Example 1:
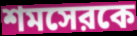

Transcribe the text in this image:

শমসেরকে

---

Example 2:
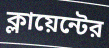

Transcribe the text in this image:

ক্লায়েন্টের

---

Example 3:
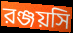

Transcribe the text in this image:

রঞ্জয়সি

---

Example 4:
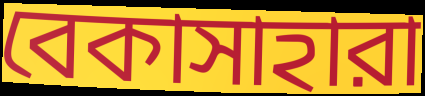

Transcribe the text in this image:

বেকাসাহারা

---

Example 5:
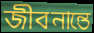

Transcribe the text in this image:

জীবনান্তে